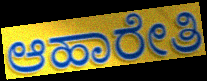
ಆಹಾರೇತಿ